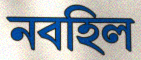
নবহিল